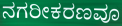
ನಗರೀಕರಣವೂ